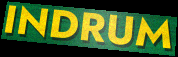
INDRUM